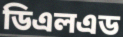
ডিএলএড